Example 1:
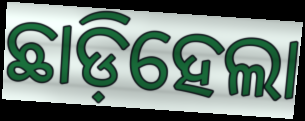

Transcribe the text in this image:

ଛାଡ଼ିହେଲା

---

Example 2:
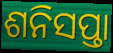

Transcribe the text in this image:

ଶନିସପ୍ତା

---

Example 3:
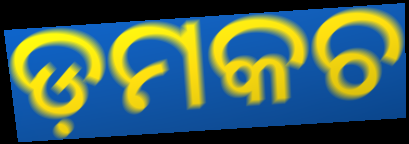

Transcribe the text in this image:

ଡ଼ମକଚ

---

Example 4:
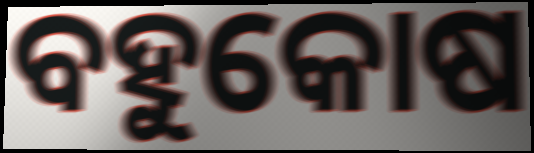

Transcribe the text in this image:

ବହୁକୋଷ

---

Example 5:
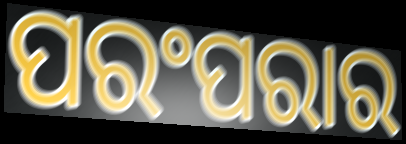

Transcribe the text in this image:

ପରଂପରାର